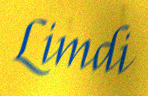
Limdi